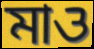
মাও